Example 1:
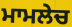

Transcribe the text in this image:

ਮਾਮਲੇਚ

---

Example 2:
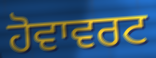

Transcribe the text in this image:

ਹੋਵਾਵਰਟ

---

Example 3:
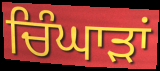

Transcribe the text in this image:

ਚਿੰਘਾੜਾਂ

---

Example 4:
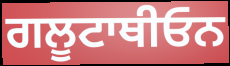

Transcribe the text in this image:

ਗਲੂਟਾਥੀਓਨ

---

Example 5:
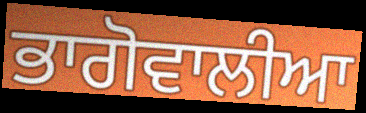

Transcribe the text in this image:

ਭਾਗੋਵਾਲੀਆ